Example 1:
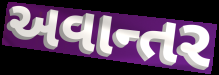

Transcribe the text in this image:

અવાન્તર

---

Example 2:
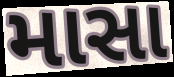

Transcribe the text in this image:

માસા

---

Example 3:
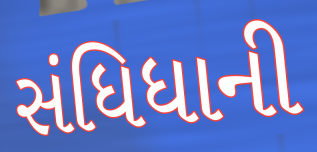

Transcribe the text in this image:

સંધિધાની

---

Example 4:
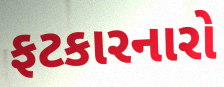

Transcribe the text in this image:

ફટકારનારો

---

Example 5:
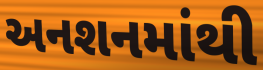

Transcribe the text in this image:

અનશનમાંથી